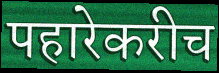
पहारेकरीच